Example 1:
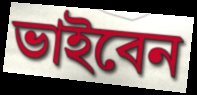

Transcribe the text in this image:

ভাইবেন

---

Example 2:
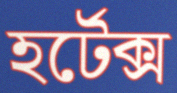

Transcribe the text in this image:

হর্টেক্স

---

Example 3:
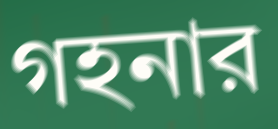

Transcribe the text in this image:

গহনার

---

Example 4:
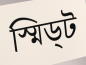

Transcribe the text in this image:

স্মিড্ট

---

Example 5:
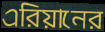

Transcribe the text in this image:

এরিয়ানের